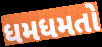
ધમધમતો